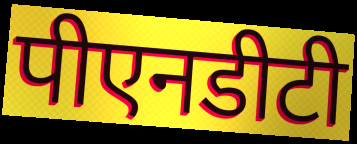
पीएनडीटी